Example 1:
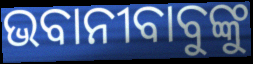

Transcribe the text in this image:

ଭବାନୀବାବୁଙ୍କୁ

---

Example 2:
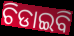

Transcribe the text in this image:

ଚିଡାଇବି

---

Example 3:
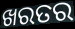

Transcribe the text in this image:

ଖରତର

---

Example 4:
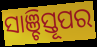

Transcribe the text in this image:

ସାଞ୍ଚିସ୍ତୂପର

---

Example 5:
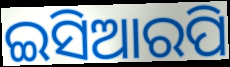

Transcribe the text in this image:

ଇସିଆରପି